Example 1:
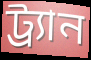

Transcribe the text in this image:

ট্র্যান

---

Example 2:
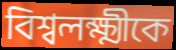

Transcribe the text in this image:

বিশ্বলক্ষ্মীকে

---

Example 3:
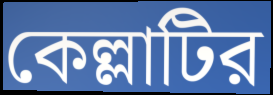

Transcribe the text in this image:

কেল্লাটির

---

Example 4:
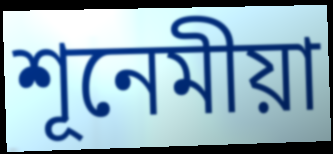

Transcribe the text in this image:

শূনেমীয়া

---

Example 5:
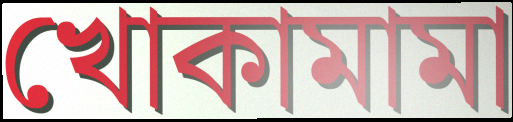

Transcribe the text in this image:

খোকামামা